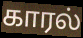
காரல்